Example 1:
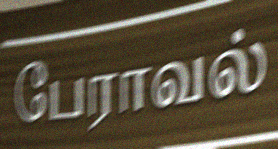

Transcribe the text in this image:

பேராவல்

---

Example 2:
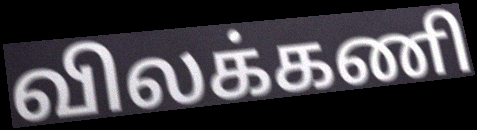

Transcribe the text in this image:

விலக்கணி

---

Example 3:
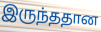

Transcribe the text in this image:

இருந்ததான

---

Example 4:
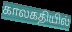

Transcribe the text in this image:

காலகதியில்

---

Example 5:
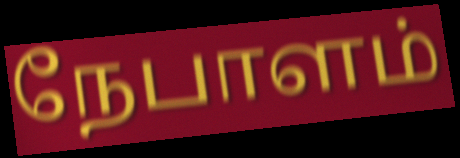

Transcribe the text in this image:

நேபாளம்